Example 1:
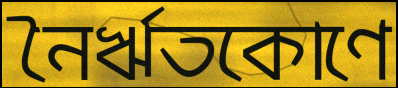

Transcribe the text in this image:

নৈর্ঋতকোণে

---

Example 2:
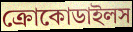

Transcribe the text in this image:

ক্রোকোডাইলস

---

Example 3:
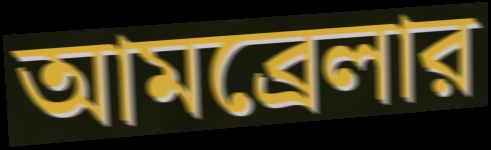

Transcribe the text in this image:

আমব্রেলার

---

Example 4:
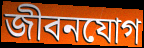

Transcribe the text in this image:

জীবনযোগ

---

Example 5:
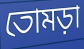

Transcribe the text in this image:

তোমড়া